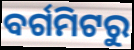
ବର୍ଗମିଟରୁ